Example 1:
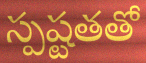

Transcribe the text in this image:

స్పష్టతతో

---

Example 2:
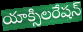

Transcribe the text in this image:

యాక్సిలరేషన్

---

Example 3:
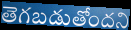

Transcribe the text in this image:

తెగబడుతోందని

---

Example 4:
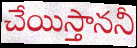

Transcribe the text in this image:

చేయిస్తాననీ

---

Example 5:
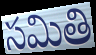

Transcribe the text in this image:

సమితి